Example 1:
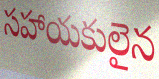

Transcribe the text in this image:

సహాయకులైన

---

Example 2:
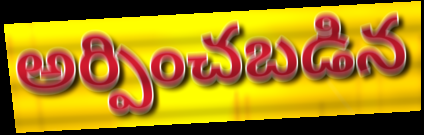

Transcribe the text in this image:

అర్పించబడిన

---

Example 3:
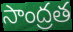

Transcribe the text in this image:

సాంద్రత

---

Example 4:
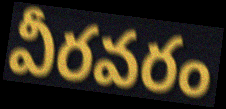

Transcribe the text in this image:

వీరవరం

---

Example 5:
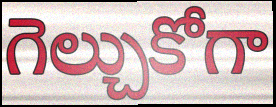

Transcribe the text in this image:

గెల్చుకోగా